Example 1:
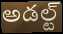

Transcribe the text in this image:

అడల్ట్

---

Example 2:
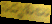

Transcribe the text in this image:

సదృశులు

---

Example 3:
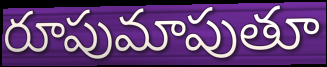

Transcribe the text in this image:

రూపుమాపుతూ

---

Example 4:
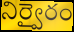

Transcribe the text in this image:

నిర్వైరం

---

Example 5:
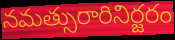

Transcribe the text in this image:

నమత్సురారినిర్జరం